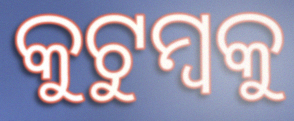
କୁଟୁମ୍ବକୁ